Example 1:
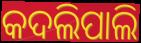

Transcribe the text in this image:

କଦଲିପାଲି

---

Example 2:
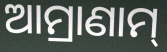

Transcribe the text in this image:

ଆମ୍ରାଣାମ୍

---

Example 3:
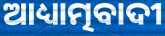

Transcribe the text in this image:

ଆଧ୍ୟାତ୍ମବାଦୀ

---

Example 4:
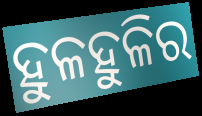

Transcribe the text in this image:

ହୁଳହୁଳିର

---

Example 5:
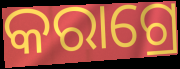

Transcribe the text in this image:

କରାଗ୍ରେ